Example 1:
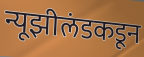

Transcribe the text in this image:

न्यूझीलंडकडून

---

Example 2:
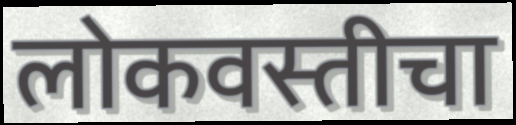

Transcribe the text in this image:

लोकवस्तीचा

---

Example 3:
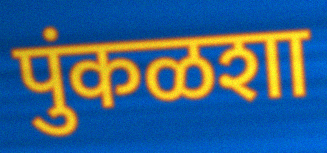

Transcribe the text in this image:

पुंकळशा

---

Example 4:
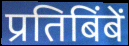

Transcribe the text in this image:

प्रतिबिंबें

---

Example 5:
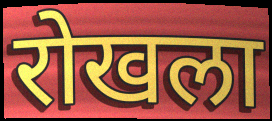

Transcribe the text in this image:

रोखला